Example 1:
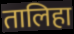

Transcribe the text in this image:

तालिहा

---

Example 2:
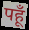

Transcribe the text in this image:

पहूँ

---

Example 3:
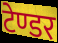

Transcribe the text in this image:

टेण्‍डर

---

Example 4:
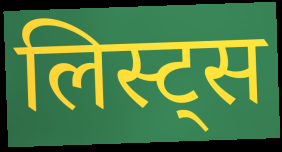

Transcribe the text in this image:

लिस्ट्स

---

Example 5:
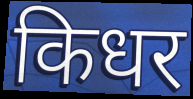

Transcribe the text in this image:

किधर